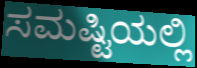
ಸಮಷ್ಟಿಯಲ್ಲಿ